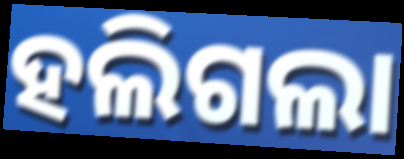
ହଲିଗଲା